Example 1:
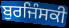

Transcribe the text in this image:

ਬੁਰਜਿੰਸਕੀ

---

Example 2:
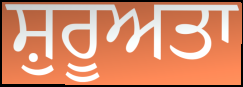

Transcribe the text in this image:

ਸ਼ੁਰੂਅਤਾ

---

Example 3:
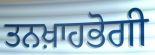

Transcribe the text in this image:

ਤਨਖ਼ਾਹਭੋਗੀ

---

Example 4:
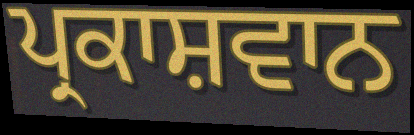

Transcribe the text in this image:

ਪ੍ਰਕਾਸ਼ਵਾਨ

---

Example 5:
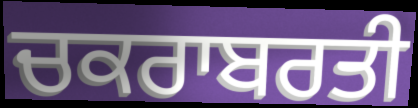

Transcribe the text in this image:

ਚਕਰਾਬਰਤੀ